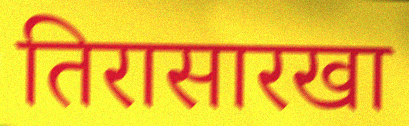
तिरासारखा